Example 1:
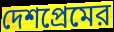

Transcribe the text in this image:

দেশপ্রেমের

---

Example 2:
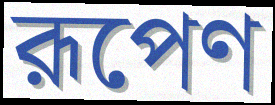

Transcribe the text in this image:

রূপেণ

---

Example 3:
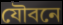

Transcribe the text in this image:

যৌবনে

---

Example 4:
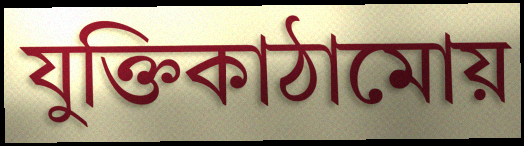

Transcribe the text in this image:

যুক্তিকাঠামোয়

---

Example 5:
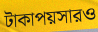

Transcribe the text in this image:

টাকাপয়সারও